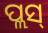
ପ୍ଲସ୍